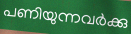
പണിയുന്നവർക്കു